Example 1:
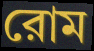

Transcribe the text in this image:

রোম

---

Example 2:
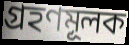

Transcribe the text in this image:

গ্রহণমূলক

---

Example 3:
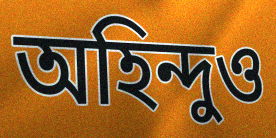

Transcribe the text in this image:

অহিন্দুও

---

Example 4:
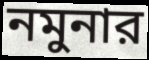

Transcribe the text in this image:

নমুনার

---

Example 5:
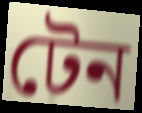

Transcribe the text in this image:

টেন